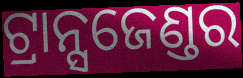
ଟ୍ରାନ୍ସଜେଣ୍ଡର